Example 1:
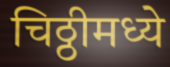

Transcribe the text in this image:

चिठ्ठीमध्ये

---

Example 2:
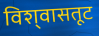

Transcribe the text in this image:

विश्वासतूट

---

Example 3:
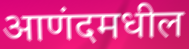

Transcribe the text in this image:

आणंदमधील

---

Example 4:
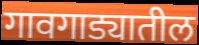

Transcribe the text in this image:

गावगाड्यातील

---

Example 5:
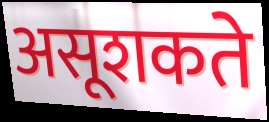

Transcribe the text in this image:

असूशकते